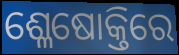
ଶ୍ଳେଷୋକ୍ତିରେ